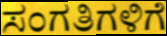
ಸಂಗತಿಗಳಿಗೆ